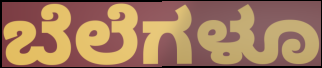
ಬೆಲೆಗಳೂ